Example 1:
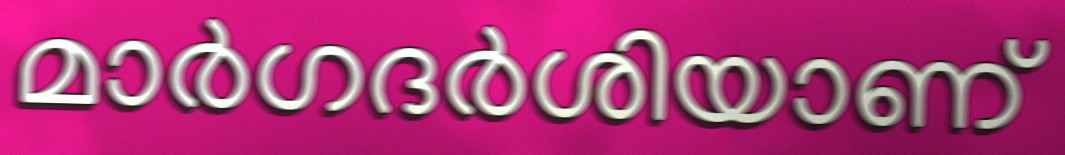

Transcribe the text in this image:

മാർഗദർശിയാണ്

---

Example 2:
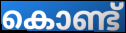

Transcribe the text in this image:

കൊണ്ട്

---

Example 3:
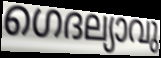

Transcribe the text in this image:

ഗെദല്യാവു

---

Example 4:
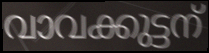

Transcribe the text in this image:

വാവക്കുട്ടന്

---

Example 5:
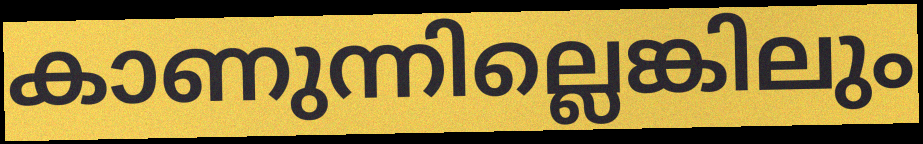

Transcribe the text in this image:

കാണുന്നില്ലെങ്കിലും